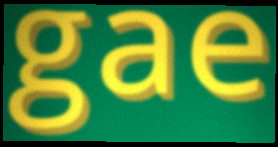
gae